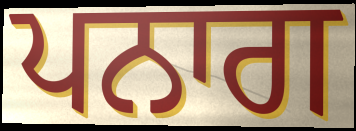
ਪਨਾਗ